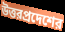
উত্তরপ্রদেশের